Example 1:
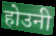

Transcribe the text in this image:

होउनी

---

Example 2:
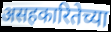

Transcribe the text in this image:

असहकारितेच्या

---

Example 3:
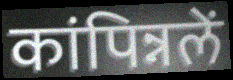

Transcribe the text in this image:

कांपिन्नलें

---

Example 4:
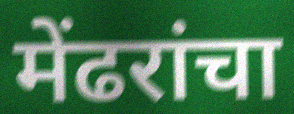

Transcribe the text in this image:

मेंढरांचा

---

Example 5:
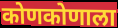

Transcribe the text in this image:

कोणकोणाला